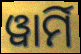
ୱାର୍ମି